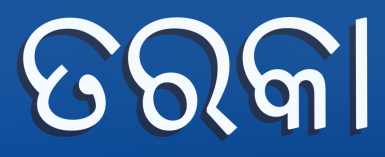
ତରକା